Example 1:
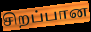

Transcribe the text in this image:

சிறப்பான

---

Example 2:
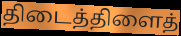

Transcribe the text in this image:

திடைத்திளைத்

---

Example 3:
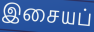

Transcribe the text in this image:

இசையப்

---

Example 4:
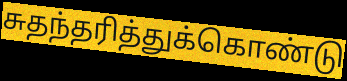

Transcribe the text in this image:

சுதந்தரித்துக்கொண்டு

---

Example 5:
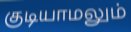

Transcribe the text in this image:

குடியாமலும்